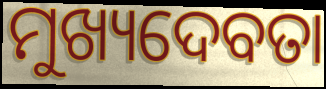
ମୁଖ୍ୟଦେବତା